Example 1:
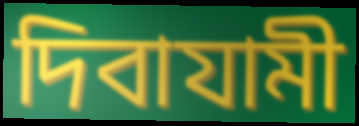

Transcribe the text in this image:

দিবাযামী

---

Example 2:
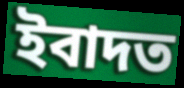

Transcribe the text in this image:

ইবাদত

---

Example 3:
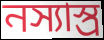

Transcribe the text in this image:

নস্যাস্ত্র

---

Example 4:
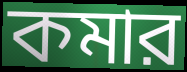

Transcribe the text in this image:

কমার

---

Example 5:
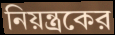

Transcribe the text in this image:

নিয়ন্ত্রকের